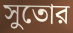
সুতোর